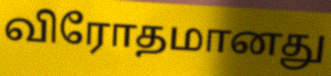
விரோதமானது